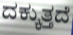
ದಕ್ಕುತ್ತದೆ